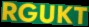
RGUKT